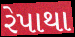
રેપાથા